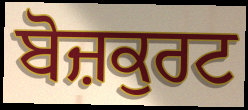
ਬੋਜ਼ਕੁਰਟ